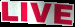
LIVE